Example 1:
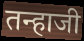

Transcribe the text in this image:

तन्हाजी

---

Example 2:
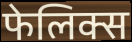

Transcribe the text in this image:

फेलिक्स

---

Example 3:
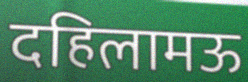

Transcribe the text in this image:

दहिलामऊ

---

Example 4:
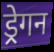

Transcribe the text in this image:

ड्रेगन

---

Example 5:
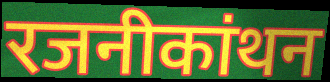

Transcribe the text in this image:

रजनीकांथन